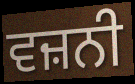
ਵਜ਼ਨੀ